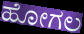
ಹೋಗಲ